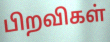
பிறவிகள்